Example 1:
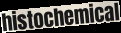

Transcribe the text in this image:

histochemical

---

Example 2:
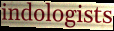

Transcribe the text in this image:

indologists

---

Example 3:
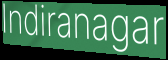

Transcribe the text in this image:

Indiranagar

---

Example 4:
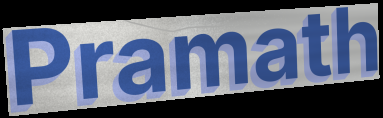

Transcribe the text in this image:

Pramath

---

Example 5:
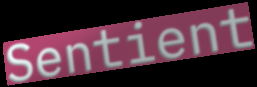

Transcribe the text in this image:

Sentient